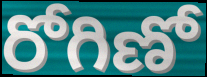
రోగిణో